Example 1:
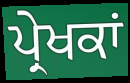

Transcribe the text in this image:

ਪ੍ਰੇਖਕਾਂ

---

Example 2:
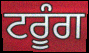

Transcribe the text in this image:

ਟਰੂੰਗ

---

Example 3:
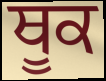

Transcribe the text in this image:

ਥੂਕ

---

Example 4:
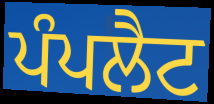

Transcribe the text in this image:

ਪੰਪਲੈਟ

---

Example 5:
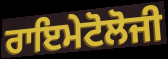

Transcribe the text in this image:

ਰਾਇਮੇਟੋਲੋਜੀ